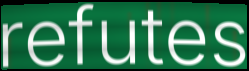
refutes